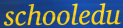
schooledu